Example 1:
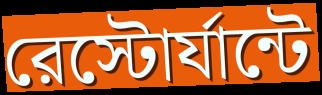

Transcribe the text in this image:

রেস্টোর্যান্টে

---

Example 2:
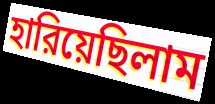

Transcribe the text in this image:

হারিয়েছিলাম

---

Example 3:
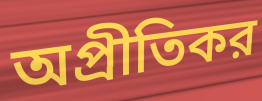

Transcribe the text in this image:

অপ্রীতিকর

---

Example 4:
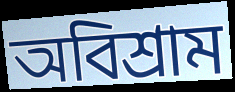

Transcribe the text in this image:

অবিশ্রাম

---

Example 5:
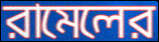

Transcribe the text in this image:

রামেলের